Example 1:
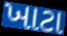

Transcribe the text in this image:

ખાટા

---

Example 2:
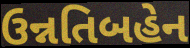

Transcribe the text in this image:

ઉન્નતિબહેન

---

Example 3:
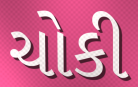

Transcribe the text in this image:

ચોકી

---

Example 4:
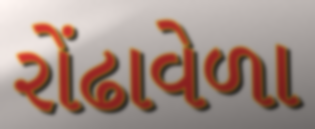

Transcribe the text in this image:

રોંઢાવેળા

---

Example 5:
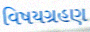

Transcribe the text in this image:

વિષયગ્રહણ